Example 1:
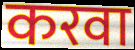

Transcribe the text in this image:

करवा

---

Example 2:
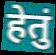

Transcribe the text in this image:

हेतुं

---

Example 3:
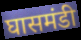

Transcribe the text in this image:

घासमंडी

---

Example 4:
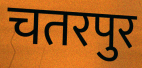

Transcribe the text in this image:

चतरपुर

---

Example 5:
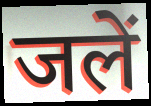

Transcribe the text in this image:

जलें